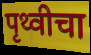
पृथ्वीचा